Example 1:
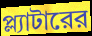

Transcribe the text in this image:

প্ল্যাটারের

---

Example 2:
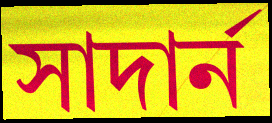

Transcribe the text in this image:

সাদার্ন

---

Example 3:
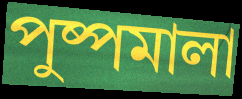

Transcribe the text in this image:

পুষ্পমালা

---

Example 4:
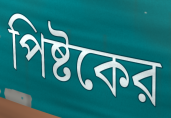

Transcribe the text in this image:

পিষ্টকের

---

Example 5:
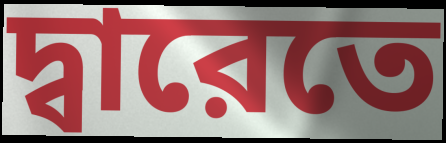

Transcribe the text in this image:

দ্বারেতে